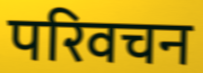
परिवचन